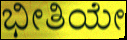
ಭೀತಿಯೇ